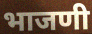
भाजणी